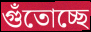
গুঁতোচ্ছে